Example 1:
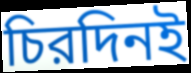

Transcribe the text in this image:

চিরদিনই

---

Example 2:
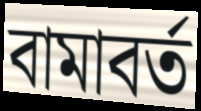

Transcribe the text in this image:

বামাবর্ত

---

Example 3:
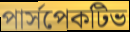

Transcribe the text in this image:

পার্সপেকটিভ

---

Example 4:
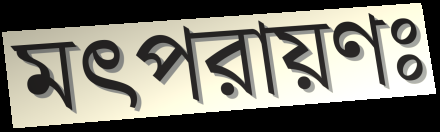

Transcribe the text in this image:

মৎপরায়ণঃ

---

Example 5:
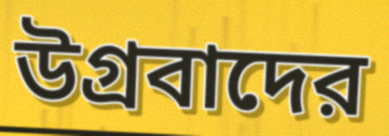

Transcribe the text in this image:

উগ্রবাদের